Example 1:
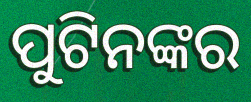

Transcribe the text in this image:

ପୁଟିନଙ୍କର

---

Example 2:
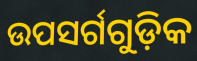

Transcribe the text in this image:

ଉପସର୍ଗଗୁଡ଼ିକ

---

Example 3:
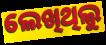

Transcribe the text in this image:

ଲେଖିଥିଲୁ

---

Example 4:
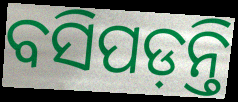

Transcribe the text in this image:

ବସିପଡ଼ନ୍ତି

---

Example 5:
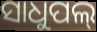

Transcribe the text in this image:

ସାଧୁପଲ୍